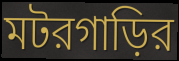
মটরগাড়ির